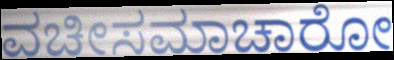
ವಚೀಸಮಾಚಾರೋ